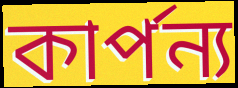
কার্পন্য